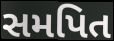
સમપિત